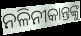
ନଳିନୀକାନ୍ତଙ୍କୁ